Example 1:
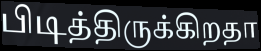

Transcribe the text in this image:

பிடித்திருக்கிறதா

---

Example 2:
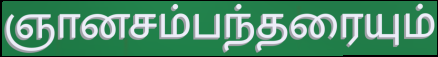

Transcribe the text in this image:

ஞானசம்பந்தரையும்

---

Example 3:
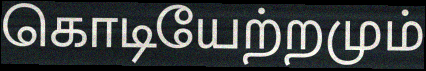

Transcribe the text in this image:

கொடியேற்றமும்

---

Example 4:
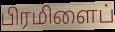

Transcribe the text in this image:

பிரமிளைப்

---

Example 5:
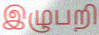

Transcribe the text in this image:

இழுபறி